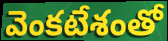
వెంకటేశంతో